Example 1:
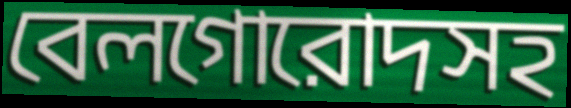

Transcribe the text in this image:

বেলগোরোদসহ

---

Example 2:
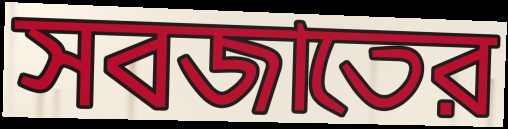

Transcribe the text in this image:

সবজাতের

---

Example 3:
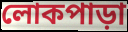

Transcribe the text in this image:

লোকপাড়া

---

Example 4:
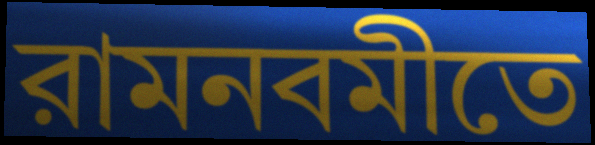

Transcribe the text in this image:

রামনবমীতে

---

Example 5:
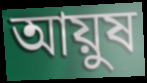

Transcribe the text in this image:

আয়ুষ